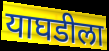
याघडीला